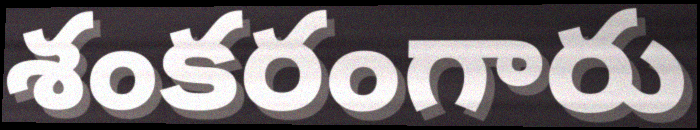
శంకరంగారు